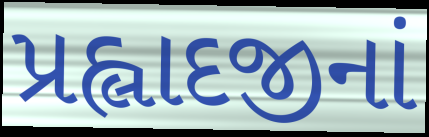
પ્રહ્લાદજીનાં